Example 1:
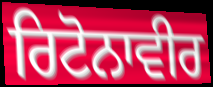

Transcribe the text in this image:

ਰਿਟੋਨਾਵੀਰ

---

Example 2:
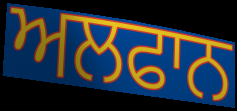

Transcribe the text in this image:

ਅਲਫਾਨ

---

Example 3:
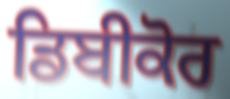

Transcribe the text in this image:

ਡਿਬੀਕੋਰ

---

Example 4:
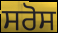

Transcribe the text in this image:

ਸਰੋਸ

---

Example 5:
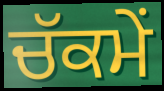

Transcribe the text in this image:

ਚੱਕਮੇਂ